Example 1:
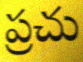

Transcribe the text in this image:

ప్రచు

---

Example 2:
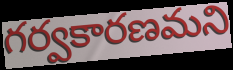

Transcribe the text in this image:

గర్వకారణమని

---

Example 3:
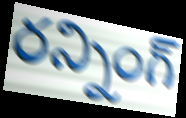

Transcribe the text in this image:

రన్నింగ్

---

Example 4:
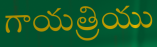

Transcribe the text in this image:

గాయత్రియు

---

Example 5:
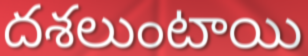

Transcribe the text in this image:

దశలుంటాయి